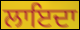
ਲਾਇਦਾ